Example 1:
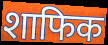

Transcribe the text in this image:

शाफिक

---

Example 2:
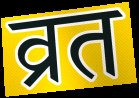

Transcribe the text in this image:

व्रत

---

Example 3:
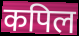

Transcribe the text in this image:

कपिल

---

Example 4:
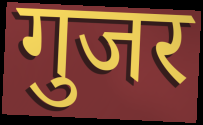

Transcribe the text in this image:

गुजर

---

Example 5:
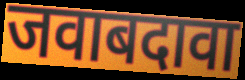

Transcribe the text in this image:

जवाबदावा